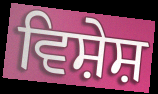
ਵਿਸ਼ੇਸ਼